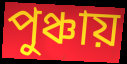
পুঞ্চায়